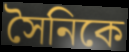
সৈনিকে